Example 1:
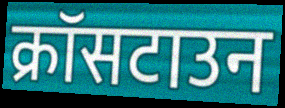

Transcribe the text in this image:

क्रॉसटाउन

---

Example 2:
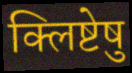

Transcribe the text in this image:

क्लिष्टेषु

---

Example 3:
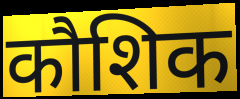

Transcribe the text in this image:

कौशिक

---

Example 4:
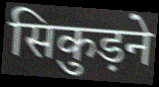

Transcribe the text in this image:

सिकुड़ने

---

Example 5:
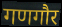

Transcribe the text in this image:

गणगौर